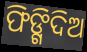
ଫିଙ୍ଗିଦିଅ